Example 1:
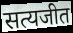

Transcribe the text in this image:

सत्यजीत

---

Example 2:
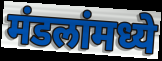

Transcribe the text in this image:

मंडलांमध्ये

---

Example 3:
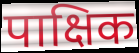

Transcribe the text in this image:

पाक्षिक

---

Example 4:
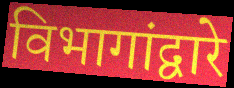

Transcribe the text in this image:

विभागांद्वारे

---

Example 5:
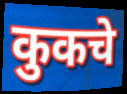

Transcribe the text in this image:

कुकचे